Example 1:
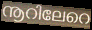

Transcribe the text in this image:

നൂറിലേറെ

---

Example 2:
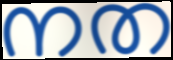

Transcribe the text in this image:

നത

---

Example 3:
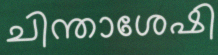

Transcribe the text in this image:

ചിന്താശേഷി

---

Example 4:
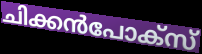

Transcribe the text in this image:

ചിക്കൻപോക്സ്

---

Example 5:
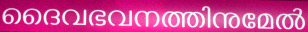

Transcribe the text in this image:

ദൈവഭവനത്തിനുമേൽ